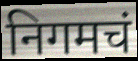
निगमचं